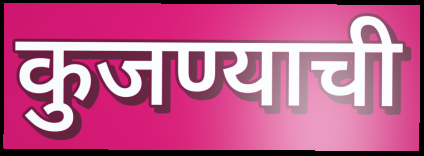
कुजण्याची